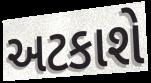
અટકાશે